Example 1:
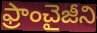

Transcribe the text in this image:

ఫ్రాంచైజీని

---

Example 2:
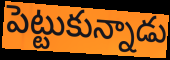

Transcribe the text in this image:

పెట్టుకున్నాడు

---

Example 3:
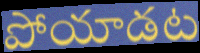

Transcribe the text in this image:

పోయాడట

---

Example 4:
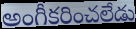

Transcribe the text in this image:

అంగీకరించలేడు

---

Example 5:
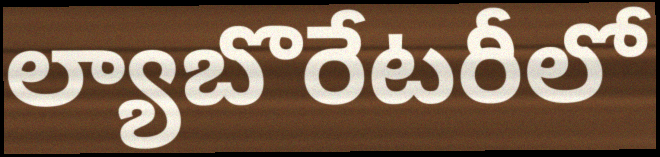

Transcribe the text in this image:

ల్యాబొరేటరీలో